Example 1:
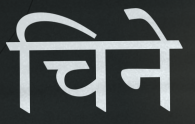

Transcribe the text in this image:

चिने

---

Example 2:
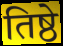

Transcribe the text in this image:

तिष्ठे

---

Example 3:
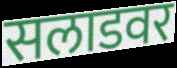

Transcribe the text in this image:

सलाडवर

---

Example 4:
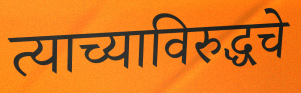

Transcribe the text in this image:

त्याच्याविरुद्धचे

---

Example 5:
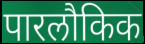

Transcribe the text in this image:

पारलौकिक